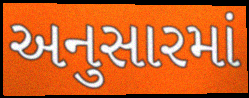
અનુસારમાં